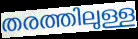
തരത്തിലുള്ള